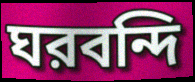
ঘরবন্দি